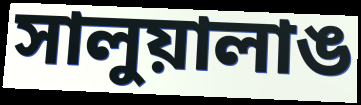
সালুয়ালাঙ